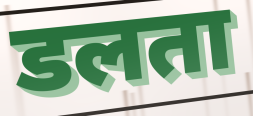
डलता